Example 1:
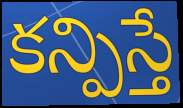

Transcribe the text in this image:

కన్పిస్తే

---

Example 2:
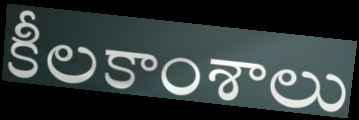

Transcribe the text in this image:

కీలకాంశాలు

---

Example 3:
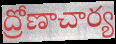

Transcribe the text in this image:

ద్రోణాచార్య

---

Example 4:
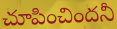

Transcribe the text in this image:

చూపించిందనీ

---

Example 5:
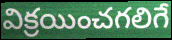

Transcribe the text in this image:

విక్రయించగలిగే